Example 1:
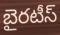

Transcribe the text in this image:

బైరటీస్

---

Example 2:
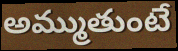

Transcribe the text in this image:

అమ్ముతుంటే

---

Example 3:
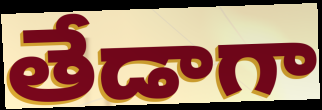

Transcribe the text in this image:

తేడాగా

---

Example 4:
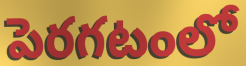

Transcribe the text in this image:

పెరగటంలో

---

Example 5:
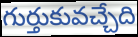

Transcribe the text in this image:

గుర్తుకువచ్చేది